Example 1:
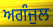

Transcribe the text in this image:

ਅਗੰਜੁਲ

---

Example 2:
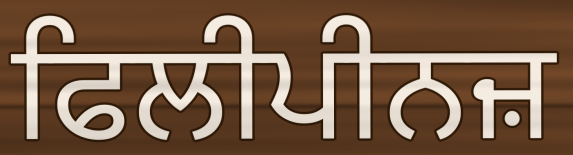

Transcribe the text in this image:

ਫਿਲੀਪੀਨਜ਼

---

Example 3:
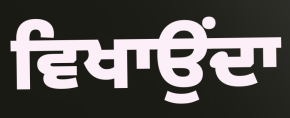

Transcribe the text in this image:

ਵਿਖਾਉਂਦਾ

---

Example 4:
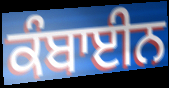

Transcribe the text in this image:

ਕੰਬਾਈਨ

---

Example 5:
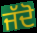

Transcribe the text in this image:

ਜੱਦੋ